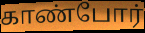
காண்போர்